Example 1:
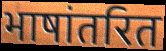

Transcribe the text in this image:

भाषांतरित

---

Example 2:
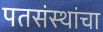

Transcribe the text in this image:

पतसंस्थांचा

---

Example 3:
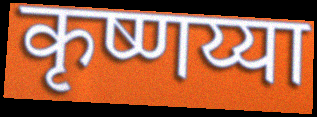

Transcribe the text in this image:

कृष्णय्या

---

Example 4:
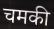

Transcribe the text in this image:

चमकी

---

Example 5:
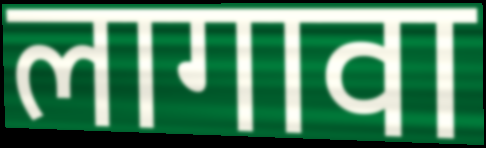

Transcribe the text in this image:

लागावा